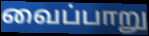
வைப்பாறு